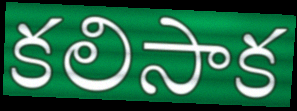
కలిసాక